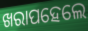
ଖରାପହେଲେ